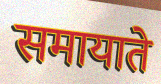
समायाते